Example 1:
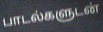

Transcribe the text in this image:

பாடல்களுடன்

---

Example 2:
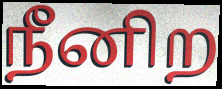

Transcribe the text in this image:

நீனிற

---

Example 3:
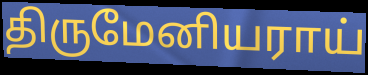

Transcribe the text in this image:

திருமேனியராய்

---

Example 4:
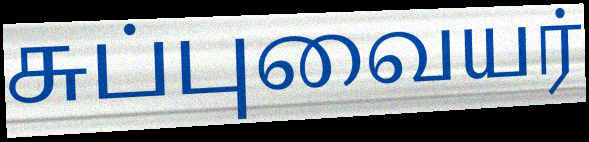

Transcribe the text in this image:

சுப்புவையர்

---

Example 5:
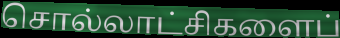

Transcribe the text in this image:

சொல்லாட்சிகளைப்